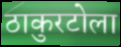
ठाकुरटोला